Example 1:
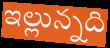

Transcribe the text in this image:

ఇల్లున్నది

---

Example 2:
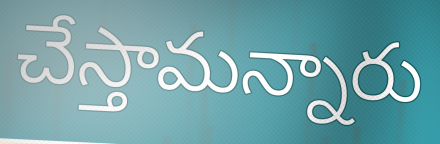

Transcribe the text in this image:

చేస్తామన్నారు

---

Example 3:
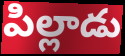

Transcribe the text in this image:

పిల్లాడు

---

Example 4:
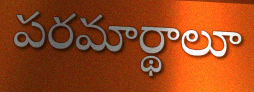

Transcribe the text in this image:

పరమార్థాలూ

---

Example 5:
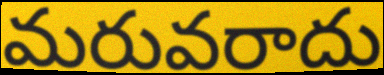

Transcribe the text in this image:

మరువరాదు